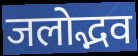
जलोद्भव